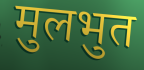
मुलभुत